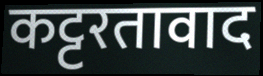
कट्टरतावाद